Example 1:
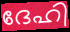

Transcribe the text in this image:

ദേഹി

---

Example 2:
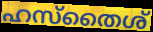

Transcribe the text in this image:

ഹസ്തൈശ്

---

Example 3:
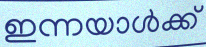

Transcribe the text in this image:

ഇന്നയാൾക്ക്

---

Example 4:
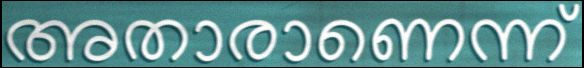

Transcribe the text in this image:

അതാരാണെന്ന്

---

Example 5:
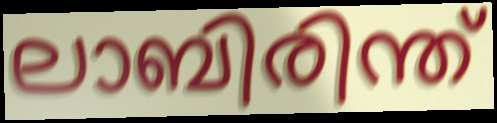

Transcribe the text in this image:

ലാബിരിന്ത്